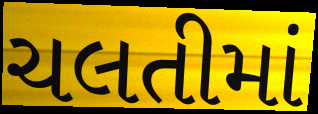
ચલતીમાં